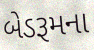
બેડરૂમના